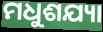
ମଧୁଶଯ୍ୟା